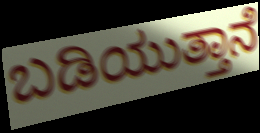
ಬಡಿಯುತ್ತಾನೆ